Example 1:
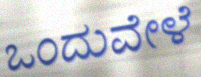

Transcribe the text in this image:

ಒಂದುವೇಳೆ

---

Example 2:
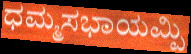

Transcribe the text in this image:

ಧಮ್ಮಸಭಾಯಮ್ಪಿ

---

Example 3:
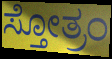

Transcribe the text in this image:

ಸ್ತೋತ್ರಂ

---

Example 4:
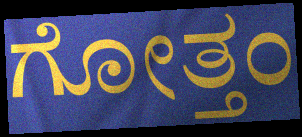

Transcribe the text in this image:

ಗೋತ್ತಂ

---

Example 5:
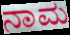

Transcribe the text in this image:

ನಾಮ